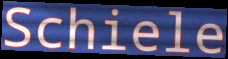
Schiele